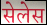
सेलेस